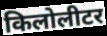
किलोलीटर